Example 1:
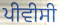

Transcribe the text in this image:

ਪੀਵੀਸੀ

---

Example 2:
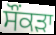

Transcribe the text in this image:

ਸੌਂਕੜਾ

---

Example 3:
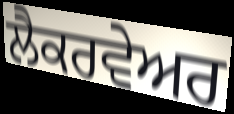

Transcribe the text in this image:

ਲੈਕਰਵੇਅਰ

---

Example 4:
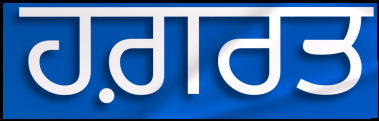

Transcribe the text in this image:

ਹਗ਼ਰਤ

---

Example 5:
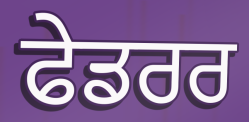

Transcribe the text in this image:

ਫੇਡਰਰ